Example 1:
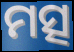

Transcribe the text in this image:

ମତ୍ସ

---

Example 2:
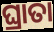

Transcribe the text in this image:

ଘ୍ରାତା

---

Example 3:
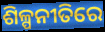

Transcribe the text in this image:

ଶିଳ୍ପନୀତିରେ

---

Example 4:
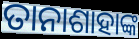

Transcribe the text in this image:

ତାନାଶାହାଙ୍କ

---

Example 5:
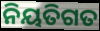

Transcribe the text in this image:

ନିୟତିଗତ